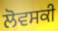
ਲੋਵਸਕੀ